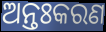
ଅନ୍ତଃକରଣ